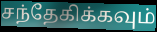
சந்தேகிக்கவும்